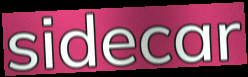
sidecar